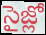
సైజ్లో